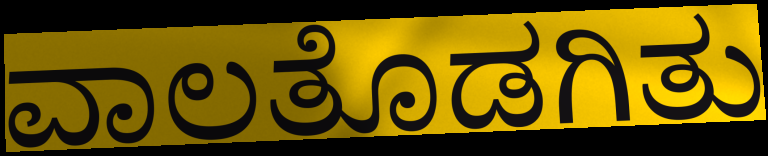
ವಾಲತೊಡಗಿತು